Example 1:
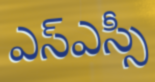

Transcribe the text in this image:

ఎస్ఎస్సీ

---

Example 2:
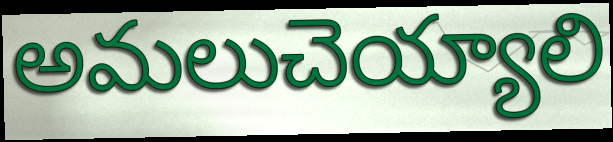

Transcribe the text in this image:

అమలుచెయ్యాలి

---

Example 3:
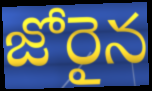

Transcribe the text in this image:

జోరైన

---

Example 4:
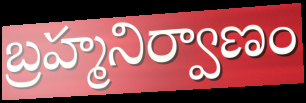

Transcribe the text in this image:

బ్రహ్మనిర్వాణం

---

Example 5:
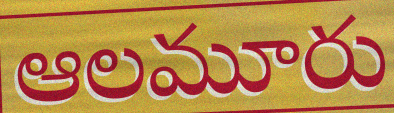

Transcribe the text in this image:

ఆలమూరు